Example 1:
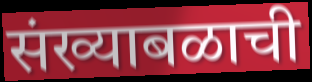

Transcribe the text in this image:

संख्याबळाची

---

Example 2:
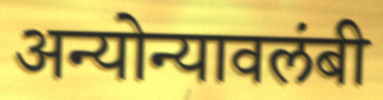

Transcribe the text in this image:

अन्योन्यावलंबी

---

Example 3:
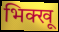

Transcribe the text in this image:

भिक्‍खू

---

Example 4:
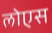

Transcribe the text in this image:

लोएस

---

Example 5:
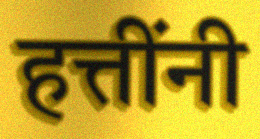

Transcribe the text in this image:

हत्तींनी